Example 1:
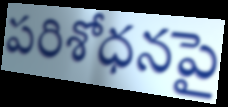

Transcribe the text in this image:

పరిశోధనపై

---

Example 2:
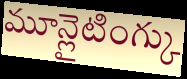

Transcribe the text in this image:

మూన్లైటింగ్కు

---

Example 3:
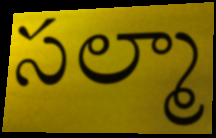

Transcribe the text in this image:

సల్మా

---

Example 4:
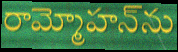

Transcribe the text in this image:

రామ్మోహన్‌ను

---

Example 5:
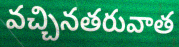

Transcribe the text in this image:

వచ్చినతరువాత